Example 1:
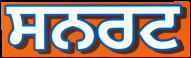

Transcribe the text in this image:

ਸਨਰਟ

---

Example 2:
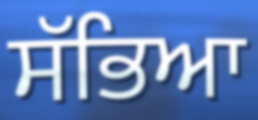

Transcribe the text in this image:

ਸੱਭਿਆ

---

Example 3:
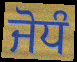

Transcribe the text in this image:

ਜੋਧੰ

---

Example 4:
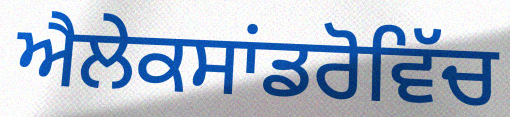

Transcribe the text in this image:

ਐਲੇਕਸਾਂਡਰੋਵਿੱਚ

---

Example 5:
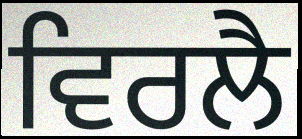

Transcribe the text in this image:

ਵਿਰਲੈ